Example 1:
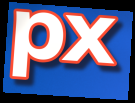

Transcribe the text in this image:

px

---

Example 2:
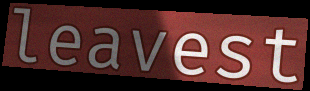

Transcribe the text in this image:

leavest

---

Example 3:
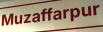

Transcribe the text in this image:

Muzaffarpur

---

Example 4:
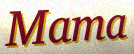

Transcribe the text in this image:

Mama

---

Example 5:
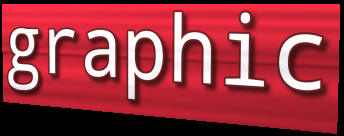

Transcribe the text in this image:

graphic